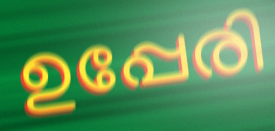
ഉപ്പേരി